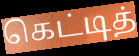
கெட்டித்